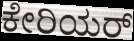
ಕೇರಿಯರ್